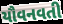
યૌવનવતી